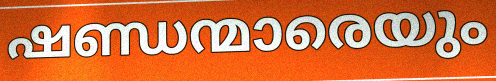
ഷണ്ഡന്മാരെയും